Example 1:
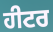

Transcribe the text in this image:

ਹੀਟਰ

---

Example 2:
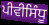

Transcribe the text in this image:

ਪੀਵੀਸਿੰਧੂ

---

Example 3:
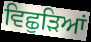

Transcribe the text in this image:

ਵਿਛੁੜਿਆਂ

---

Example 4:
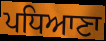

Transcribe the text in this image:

ਪਧਿਆਣਾ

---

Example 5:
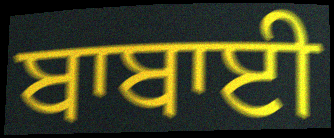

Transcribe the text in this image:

ਬਾਬਾਈ